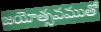
జయోత్సవముతో